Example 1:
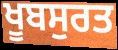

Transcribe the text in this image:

ਖੂਬਸੁਰਤ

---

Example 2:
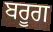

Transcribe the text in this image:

ਬਰੂਗ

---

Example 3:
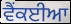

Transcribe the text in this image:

ਵੈਂਕਈਆ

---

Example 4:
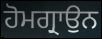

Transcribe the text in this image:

ਹੋਮਗ੍ਰਾਉਨ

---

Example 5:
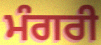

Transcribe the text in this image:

ਮੰਗਰੀ